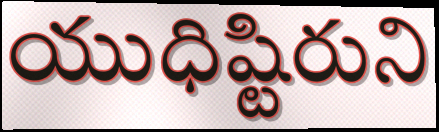
యుధిష్టిరుని